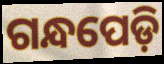
ଗନ୍ଧପେଡ଼ି